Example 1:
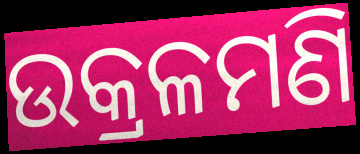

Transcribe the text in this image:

ଉକ୍ରଳମଣି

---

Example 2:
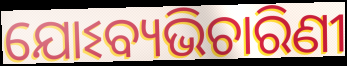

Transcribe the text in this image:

ଯୋଽବ୍ୟଭିଚାରିଣୀ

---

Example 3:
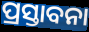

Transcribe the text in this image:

ପ୍ରସ୍ତାବନା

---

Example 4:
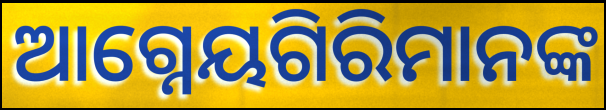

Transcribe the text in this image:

ଆଗ୍ନେୟଗିରିମାନଙ୍କ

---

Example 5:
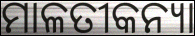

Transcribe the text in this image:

ମାଳତୀକନ୍ୟା